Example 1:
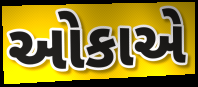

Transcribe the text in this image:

ઓકાએ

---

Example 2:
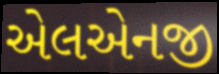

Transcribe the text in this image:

એલએનજી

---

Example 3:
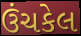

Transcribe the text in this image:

ઉંચકેલ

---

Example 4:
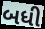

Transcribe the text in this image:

બધી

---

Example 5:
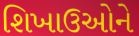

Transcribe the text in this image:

શિખાઉઓને